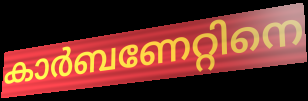
കാർബണേറ്റിനെ